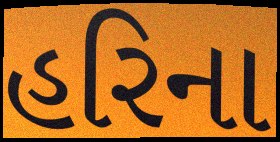
હરિના